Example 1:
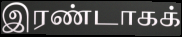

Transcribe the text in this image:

இரண்டாகக்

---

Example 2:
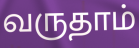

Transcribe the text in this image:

வருதாம்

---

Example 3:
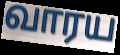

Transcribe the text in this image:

வாரய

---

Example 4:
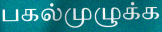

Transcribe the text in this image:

பகல்முழுக்க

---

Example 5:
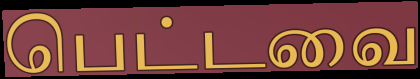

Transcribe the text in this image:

பெட்டவை